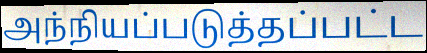
அந்நியப்படுத்தப்பட்ட